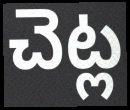
చెట్ల